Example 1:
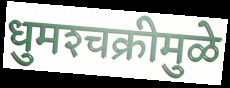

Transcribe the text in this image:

धुमश्चक्रीमुळे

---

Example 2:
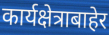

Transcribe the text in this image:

कार्यक्षेत्राबाहेर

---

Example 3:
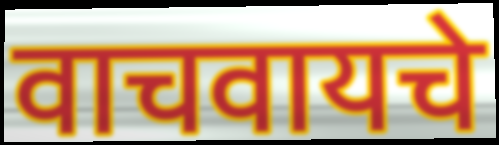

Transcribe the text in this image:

वाचवायचे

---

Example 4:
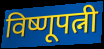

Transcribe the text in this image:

विष्णूपत्नी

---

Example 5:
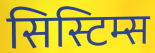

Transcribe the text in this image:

सिस्टिम्स